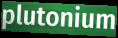
plutonium